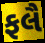
ફલૈ